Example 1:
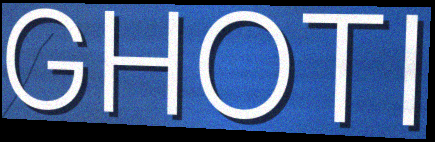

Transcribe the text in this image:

GHOTI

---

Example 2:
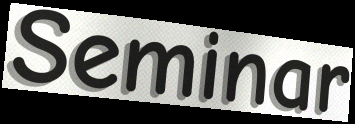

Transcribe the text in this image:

Seminar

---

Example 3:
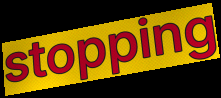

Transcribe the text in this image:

stopping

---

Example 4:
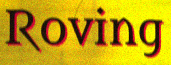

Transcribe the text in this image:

Roving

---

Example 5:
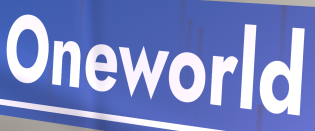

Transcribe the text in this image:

Oneworld